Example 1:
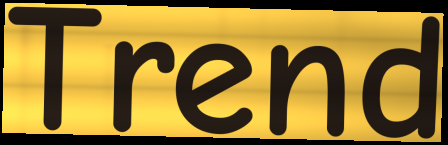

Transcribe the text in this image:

Trend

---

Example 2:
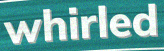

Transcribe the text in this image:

whirled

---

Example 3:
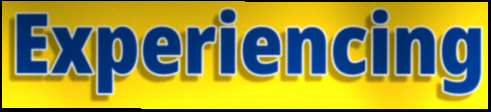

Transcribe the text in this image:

Experiencing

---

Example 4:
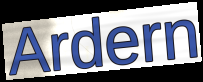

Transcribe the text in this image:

Ardern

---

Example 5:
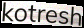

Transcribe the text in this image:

kotresh